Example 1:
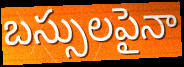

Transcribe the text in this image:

బస్సులపైనా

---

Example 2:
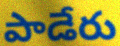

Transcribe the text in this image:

పాడేరు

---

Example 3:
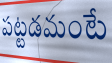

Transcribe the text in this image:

పట్టడమంటే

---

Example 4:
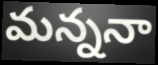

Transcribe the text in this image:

మన్ననా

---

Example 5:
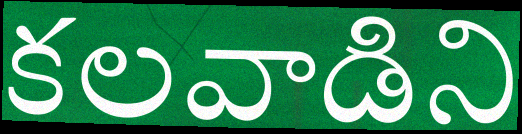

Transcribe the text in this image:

కలవాడిని